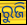
ରୁଜି